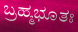
ಬ್ರಹ್ಮಭೂತಃ